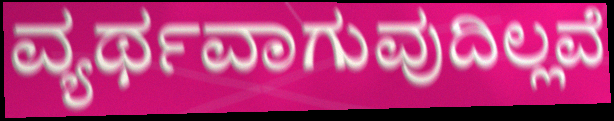
ವ್ಯರ್ಥವಾಗುವುದಿಲ್ಲವೆ